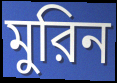
মুরিন